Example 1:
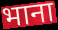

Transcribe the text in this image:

भाना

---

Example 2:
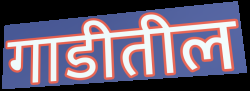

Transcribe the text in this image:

गाडीतील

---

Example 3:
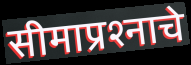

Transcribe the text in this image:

सीमाप्रश्नाचे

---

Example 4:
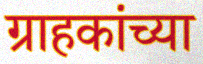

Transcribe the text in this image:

ग्राहकांच्या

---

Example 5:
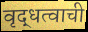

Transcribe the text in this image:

वृद्धत्वाची